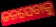
ଜନସେବାକୁ